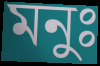
মনুঃ